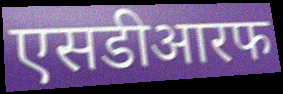
एसडीआरफ